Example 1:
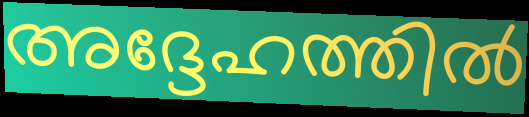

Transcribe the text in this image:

അദ്ദേഹത്തിൽ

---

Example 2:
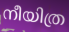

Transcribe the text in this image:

നീയിത്ര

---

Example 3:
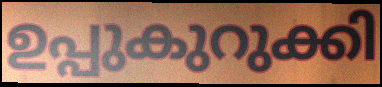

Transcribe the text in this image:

ഉപ്പുകുറുക്കി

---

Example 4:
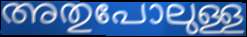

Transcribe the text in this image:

അതുപോലുള്ള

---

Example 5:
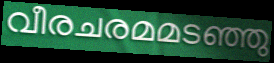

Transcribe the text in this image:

വീരചരമമടഞ്ഞു